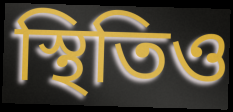
স্থিতিও